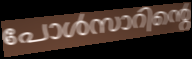
പോൾസാറിന്റെ